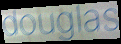
douglas